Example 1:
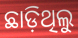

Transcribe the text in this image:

ଛାଡ଼ିଥିଲୁ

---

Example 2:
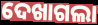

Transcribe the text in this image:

ଦେଖାଗଲା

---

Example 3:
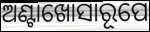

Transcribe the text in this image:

ଅଣ୍ଟାଖୋସାରୂପେ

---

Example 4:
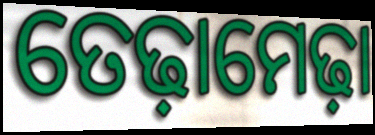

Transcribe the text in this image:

ତେଢ଼ାମେଢ଼ା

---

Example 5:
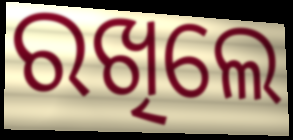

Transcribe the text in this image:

ରଖିଲେ